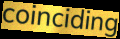
coinciding